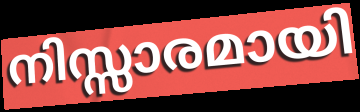
നിസ്സാരമായി